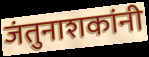
जंतुनाशकांनी